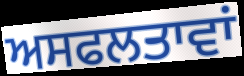
ਅਸਫਲਤਾਵਾਂ